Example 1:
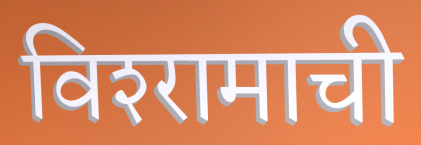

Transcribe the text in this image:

विश्रामाची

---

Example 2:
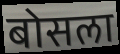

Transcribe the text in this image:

बोसला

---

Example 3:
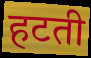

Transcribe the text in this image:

हटती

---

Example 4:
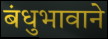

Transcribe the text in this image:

बंधुभावाने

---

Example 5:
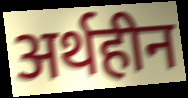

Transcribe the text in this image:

अर्थहीन